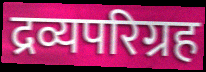
द्रव्यपरिग्रह